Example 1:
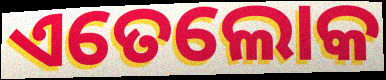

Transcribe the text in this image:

ଏତେଲୋକ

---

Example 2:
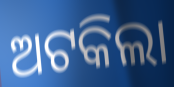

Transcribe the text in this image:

ଅଟକିଲା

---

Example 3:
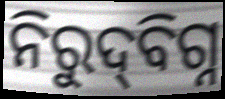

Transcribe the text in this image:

ନିରୁଦ୍‍ବିଗ୍ନ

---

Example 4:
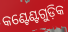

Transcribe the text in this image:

କଣ୍ଟେଣ୍ଟଗୁଡ଼ିକ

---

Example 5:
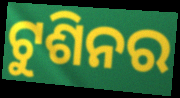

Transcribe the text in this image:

ଟୁଶିନର